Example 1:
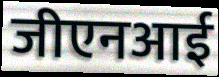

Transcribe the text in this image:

जीएनआई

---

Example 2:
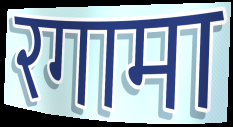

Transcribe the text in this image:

रगामा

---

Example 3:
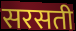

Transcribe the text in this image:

सरसती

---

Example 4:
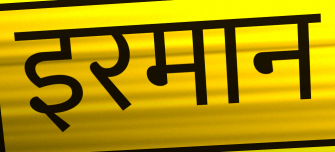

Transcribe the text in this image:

इरमान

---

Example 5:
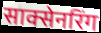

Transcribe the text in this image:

साक्सेनरिंग